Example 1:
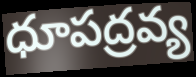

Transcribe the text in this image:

ధూపద్రవ్య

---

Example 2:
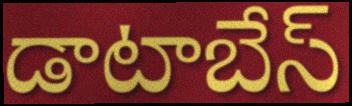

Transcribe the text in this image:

డాటాబేస్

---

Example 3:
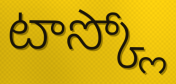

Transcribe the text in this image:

టాస్క్లో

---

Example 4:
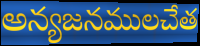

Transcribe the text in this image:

అన్యజనములచేత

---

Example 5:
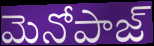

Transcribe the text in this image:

మెనోపాజ్